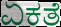
ಏಕತೆ